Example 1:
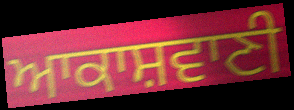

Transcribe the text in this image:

ਆਕਾਸ਼ਵਾਣੀ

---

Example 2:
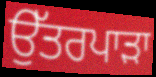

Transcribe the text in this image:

ਉੱਤਰਪਾੜਾ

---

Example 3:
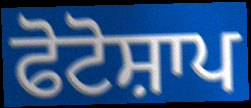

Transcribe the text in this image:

ਫੋਟੋਸ਼ਾਪ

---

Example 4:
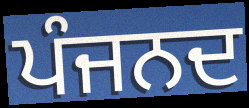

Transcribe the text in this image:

ਪੰਜਨਦ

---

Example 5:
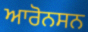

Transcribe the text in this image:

ਆਰੋਨਸਨ